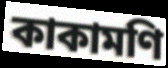
কাকামণি